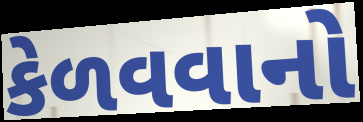
કેળવવાનો